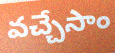
వచ్చేసాం